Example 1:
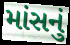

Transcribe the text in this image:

માંસનું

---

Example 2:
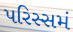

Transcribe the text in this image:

પરિસ્સમં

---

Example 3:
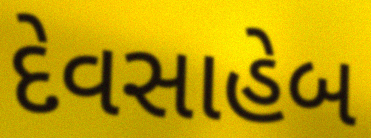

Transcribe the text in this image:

દેવસાહેબ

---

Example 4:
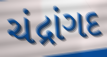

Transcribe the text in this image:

ચંદ્રાંગદ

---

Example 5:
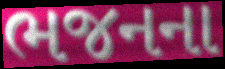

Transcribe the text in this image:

ભજનના